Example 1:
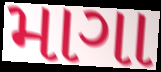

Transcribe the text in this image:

માગા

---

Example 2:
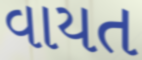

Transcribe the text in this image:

વાયત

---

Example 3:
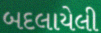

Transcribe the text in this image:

બદલાયેલી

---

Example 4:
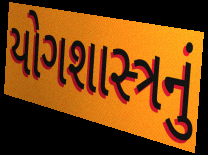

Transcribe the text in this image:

યોગશાસ્ત્રનું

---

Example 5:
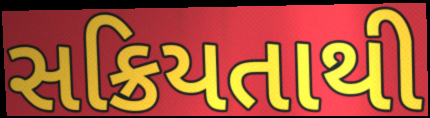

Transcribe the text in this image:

સક્રિયતાથી